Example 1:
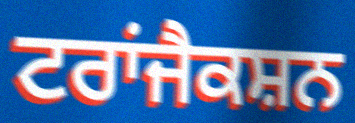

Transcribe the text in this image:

ਟਰਾਂਜੈਕਸ਼ਨ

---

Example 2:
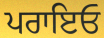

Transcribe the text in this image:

ਪਰਾਇਓ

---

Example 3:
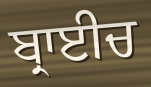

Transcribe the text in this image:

ਬ੍ਰਾਈਚ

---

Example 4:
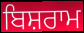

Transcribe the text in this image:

ਬਿਸ਼ਰਾਮ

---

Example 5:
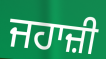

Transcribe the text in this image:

ਜਹਾਜ਼ੀ